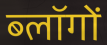
ब्‍लॉगों